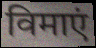
विमाएं